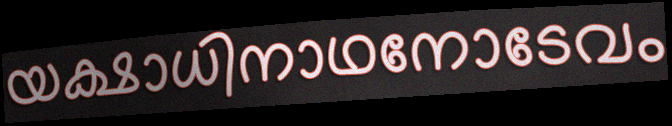
യക്ഷാധിനാഥനോടേവം